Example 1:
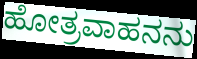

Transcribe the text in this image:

ಹೋತ್ರವಾಹನನು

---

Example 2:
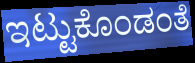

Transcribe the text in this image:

ಇಟ್ಟುಕೊಂಡಂತೆ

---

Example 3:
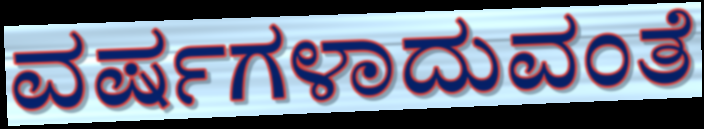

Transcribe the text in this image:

ವರ್ಷಗಳಾದುವಂತೆ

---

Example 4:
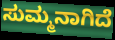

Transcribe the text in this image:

ಸುಮ್ಮನಾಗಿದೆ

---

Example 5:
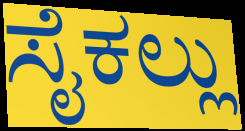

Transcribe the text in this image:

ಸೈಕಲ್ಲು